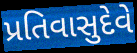
પ્રતિવાસુદેવે